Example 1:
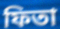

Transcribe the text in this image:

ফিতা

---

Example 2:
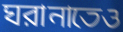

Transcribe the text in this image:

ঘরানাতেও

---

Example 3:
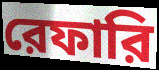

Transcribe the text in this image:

রেফারি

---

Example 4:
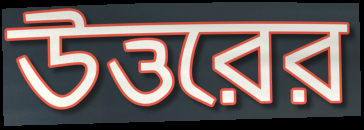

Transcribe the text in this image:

উত্তরের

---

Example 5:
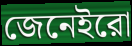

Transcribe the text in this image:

জেনেইরো